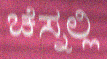
ಚೆಸ್ನಲ್ಲಿ